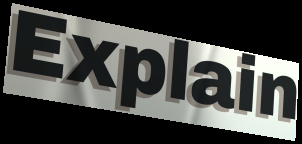
Explain